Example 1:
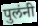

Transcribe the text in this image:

पुलंनी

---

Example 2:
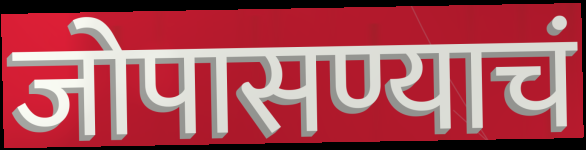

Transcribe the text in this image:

जोपासण्याचं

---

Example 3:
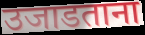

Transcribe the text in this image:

उजाडताना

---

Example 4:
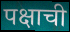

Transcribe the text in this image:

पक्षाची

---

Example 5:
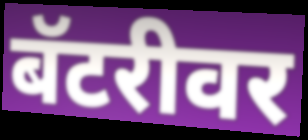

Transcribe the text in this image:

बॅटरीवर